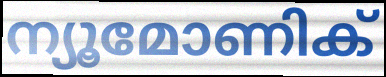
ന്യൂമോണിക്